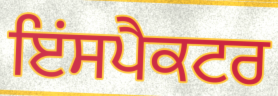
ਇਂਸਪੈਕਟਰ